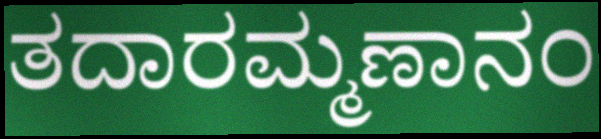
ತದಾರಮ್ಮಣಾನಂ